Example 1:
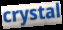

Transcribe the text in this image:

crystal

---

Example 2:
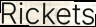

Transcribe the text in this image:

Rickets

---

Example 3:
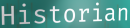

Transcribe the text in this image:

Historian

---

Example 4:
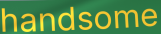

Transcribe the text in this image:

handsome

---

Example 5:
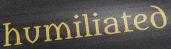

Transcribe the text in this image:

humiliated